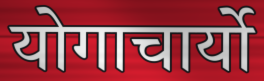
योगाचार्यो